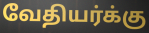
வேதியர்க்கு